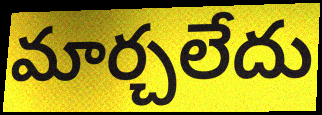
మార్చలేదు